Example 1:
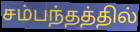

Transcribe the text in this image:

சம்பந்தத்தில்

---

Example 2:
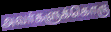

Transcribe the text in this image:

அவர்களுக்கொரு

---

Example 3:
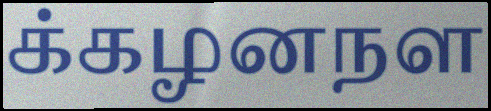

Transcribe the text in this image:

க்கழனநள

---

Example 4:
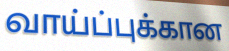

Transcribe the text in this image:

வாய்ப்புக்கான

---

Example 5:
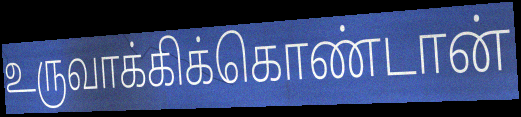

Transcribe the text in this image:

உருவாக்கிக்கொண்டான்